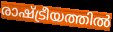
രാഷ്ട്രീയത്തിൽ